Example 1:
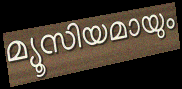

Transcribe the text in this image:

മ്യൂസിയമായും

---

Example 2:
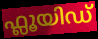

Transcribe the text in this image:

ഫ്ലൂയിഡ്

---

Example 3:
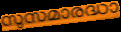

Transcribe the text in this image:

സുസമാരദ്ധാ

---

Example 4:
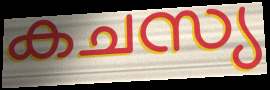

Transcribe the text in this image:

കചസ്യ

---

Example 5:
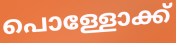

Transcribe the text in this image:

പൊള്ളോക്ക്